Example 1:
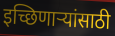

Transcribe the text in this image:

इच्छिणाऱ्यांसाठी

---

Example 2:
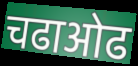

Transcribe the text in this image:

चढाओढ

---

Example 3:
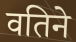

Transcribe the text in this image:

वतिने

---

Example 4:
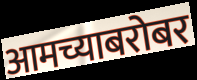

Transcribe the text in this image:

आमच्याबरोबर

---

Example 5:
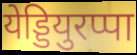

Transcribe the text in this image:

येड्डियुरप्पा